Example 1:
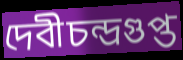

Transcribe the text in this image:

দেবীচন্দ্রগুপ্ত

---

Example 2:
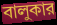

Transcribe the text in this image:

বালুকার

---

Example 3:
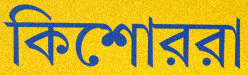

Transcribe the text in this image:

কিশোররা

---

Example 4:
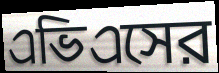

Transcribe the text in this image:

এভিএসের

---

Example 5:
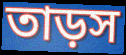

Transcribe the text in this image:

তাড়স